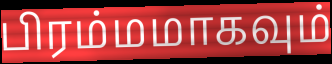
பிரம்மமாகவும்